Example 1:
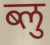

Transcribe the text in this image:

ब्लु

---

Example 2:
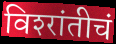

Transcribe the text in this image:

विश्रांतीचं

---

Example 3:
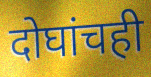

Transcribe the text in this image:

दोघांचही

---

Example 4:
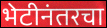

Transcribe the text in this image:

भेटीनंतरचा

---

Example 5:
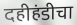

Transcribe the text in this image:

दहीहंडीचा